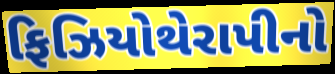
ફિઝિયોથેરાપીનો